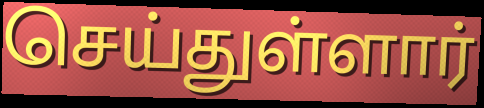
செய்துள்ளார்